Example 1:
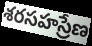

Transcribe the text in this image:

శరసహస్రేణ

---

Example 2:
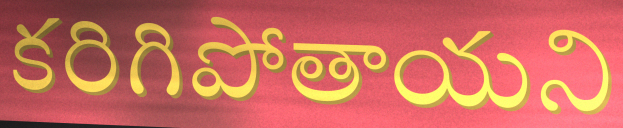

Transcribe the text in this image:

కరిగిపోతాయని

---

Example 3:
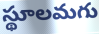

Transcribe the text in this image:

స్థూలమగు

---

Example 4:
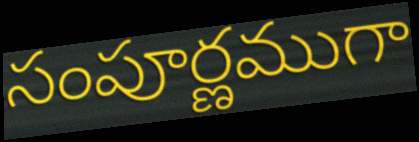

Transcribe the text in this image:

సంపూర్ణముగా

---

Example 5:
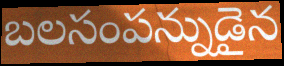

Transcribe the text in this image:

బలసంపన్నుడైన